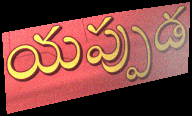
యప్పుడ